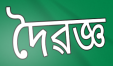
দৈৱজ্ঞ